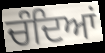
ਚੰਦਿਆਂ